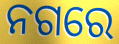
ନଗରେ